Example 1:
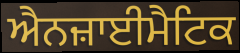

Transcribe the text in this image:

ਐਨਜ਼ਾਈਮੈਟਿਕ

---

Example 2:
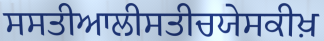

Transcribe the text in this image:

ਸਸਤੀਆਲੀਸਤੀਚਯੇਸਕੀਖ਼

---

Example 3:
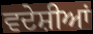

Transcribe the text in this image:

ਵਦੇਸ਼ੀਆਂ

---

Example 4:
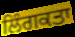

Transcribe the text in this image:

ਲਿੰਗਕਤਾ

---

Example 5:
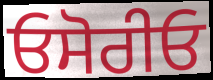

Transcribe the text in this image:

ਓਸੋਰੀਓ